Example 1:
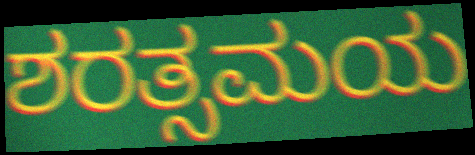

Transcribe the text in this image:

ಶರತ್ಸಮಯ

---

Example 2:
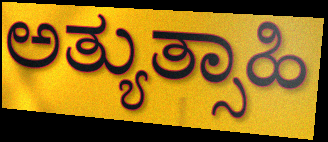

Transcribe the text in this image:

ಅತ್ಯುತ್ಸಾಹಿ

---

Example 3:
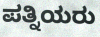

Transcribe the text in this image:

ಪತ್ನಿಯರು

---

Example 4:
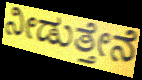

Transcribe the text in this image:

ನೀಡುತ್ತೇನೆ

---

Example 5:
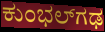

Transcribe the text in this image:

ಕುಂಭಲ್‌ಗಢ